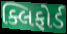
ક્લિફોર્ડ